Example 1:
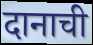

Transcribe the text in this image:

दानाची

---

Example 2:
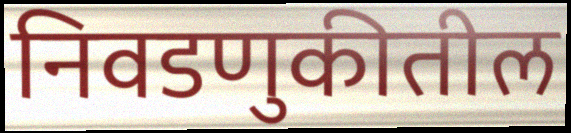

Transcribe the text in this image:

निवडणुकीतील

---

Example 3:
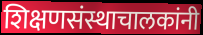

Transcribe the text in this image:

शिक्षणसंस्थाचालकांनी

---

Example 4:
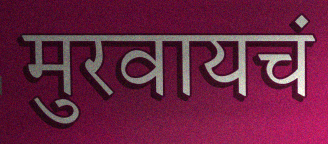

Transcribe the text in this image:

मुरवायचं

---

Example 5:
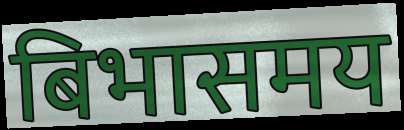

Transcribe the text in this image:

बिभासमय